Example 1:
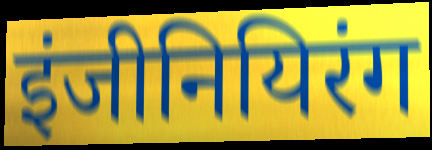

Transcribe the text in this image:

इंजीनियिरंग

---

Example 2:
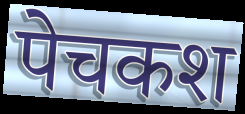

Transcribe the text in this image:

पेचकश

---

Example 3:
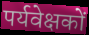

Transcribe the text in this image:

पर्यवेक्षकों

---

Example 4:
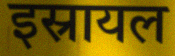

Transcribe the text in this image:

इस्रायल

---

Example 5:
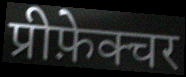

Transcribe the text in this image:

प्रीफ़ेक्चर